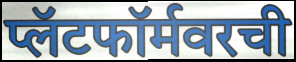
प्लॅटफॉर्मवरची